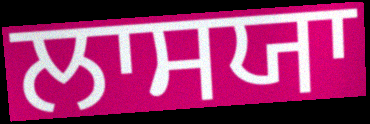
ਲਾਸਯਾ